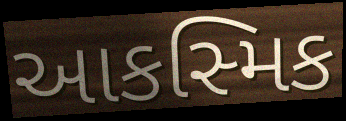
આકસ્મિક